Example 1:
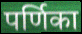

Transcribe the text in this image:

पर्णिका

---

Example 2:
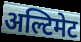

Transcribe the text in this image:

अल्टिमेट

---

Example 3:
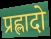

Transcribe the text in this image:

प्रह्लादो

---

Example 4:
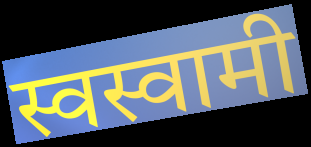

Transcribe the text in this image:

स्वस्वामी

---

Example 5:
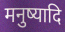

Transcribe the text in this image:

मनुष्यादि